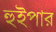
হুইপার